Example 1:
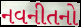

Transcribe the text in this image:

નવનીતનો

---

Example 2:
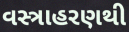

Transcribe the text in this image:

વસ્ત્રાહરણથી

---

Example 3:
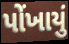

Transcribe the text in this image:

પોંખાયું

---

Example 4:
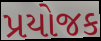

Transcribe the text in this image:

પ્રયોજક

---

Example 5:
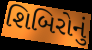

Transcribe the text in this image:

શિબિરોનું